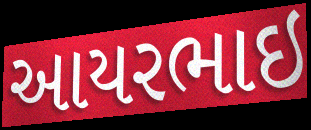
આયરભાઇ